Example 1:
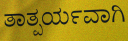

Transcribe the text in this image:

ತಾತ್ಪರ್ಯವಾಗಿ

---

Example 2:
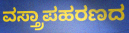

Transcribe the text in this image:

ವಸ್ತ್ರಾಪಹರಣದ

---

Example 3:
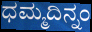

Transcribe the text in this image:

ಧಮ್ಮದಿನ್ನಂ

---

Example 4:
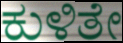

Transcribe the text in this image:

ಕುಳಿತೇ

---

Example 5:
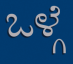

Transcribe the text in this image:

ಒಳ್ಗೆ